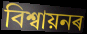
বিশ্ৱায়নৰ